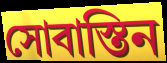
সোবাস্তিন